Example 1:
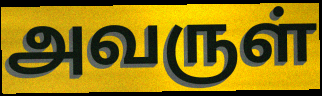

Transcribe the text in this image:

அவருள்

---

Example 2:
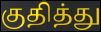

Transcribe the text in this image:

குதித்து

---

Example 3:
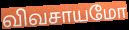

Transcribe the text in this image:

விவசாயமோ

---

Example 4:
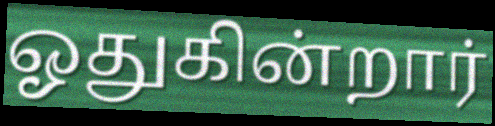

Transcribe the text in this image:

ஓதுகின்றார்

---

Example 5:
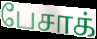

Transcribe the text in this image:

பேசாக்